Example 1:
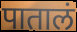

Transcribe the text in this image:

पातालं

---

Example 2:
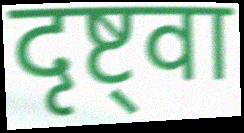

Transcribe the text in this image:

दृष्ट्‍वा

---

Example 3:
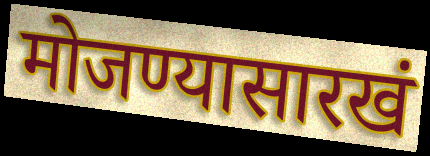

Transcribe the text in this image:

मोजण्यासारखं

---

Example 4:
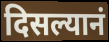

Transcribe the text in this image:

दिसल्यानं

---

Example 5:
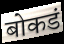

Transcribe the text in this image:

बोकडं